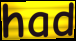
had